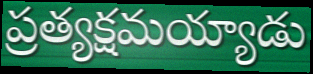
ప్రత్యక్షమయ్యాడు